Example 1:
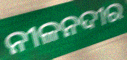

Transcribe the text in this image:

ନୀଳନଦୀର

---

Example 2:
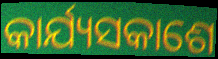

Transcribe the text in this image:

କାର୍ଯ୍ୟସକାଶେ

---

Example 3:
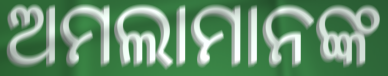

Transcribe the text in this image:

ଅମଲାମାନଙ୍କ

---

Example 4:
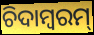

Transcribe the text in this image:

ଚିଦାମ୍ବରମ୍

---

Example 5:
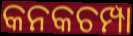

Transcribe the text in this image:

କନକଚମ୍ପା